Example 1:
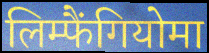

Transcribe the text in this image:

लिम्फैंगियोमा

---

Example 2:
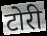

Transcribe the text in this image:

टोरी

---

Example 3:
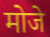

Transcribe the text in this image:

मोजे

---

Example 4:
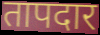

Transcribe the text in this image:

तापदार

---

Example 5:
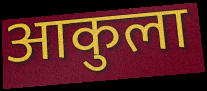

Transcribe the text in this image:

आकुला